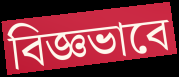
বিজ্ঞভাবে